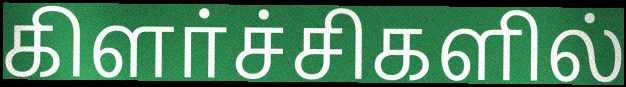
கிளர்ச்சிகளில்